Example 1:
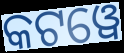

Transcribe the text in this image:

କଟୱେ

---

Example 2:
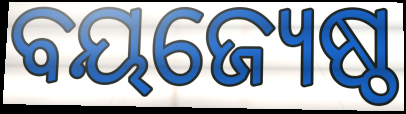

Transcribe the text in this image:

ବୟଜ୍ୟେଷ୍ଠ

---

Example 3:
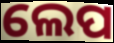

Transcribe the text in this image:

ଲେପ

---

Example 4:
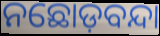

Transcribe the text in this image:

ନଛୋଡ଼ବନ୍ଦା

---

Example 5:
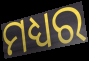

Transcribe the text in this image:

ମଧ୍ଯର